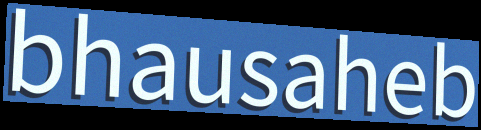
bhausaheb